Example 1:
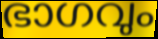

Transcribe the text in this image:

ഭാഗവും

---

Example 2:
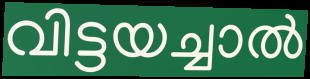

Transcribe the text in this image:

വിട്ടയച്ചാൽ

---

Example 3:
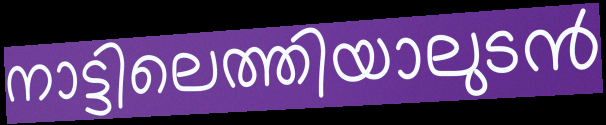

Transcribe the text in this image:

നാട്ടിലെത്തിയാലുടൻ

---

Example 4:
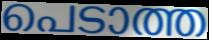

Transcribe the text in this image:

പെടാത്ത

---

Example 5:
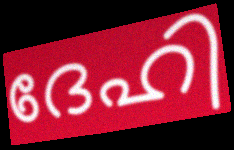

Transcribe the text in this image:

ദേഹി